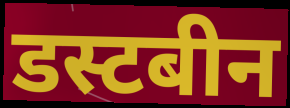
डस्टबीन